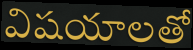
విషయాలతో